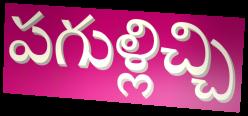
పగుళ్లిచ్చి